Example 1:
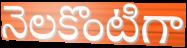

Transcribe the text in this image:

నెలకొంటిగా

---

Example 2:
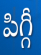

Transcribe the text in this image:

పిగ్గీ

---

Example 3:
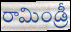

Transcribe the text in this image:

రామిండ్రీ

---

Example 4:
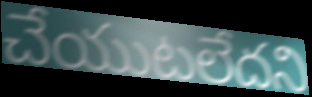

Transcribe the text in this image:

చేయుటలేదని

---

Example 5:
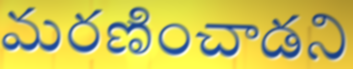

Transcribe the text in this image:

మరణించాడని